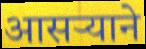
आसर्‍याने